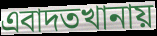
এবাদতখানায়